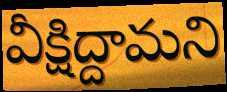
వీక్షిద్దామని